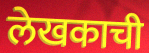
लेखकाची